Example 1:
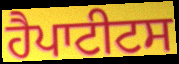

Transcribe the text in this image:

ਹੈਪਾਟੀਟਸ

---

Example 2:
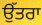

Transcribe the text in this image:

ਉੱਤਰਾ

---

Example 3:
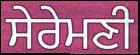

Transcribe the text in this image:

ਸੇਰੇਮਣੀ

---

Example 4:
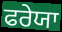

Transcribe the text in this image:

ਫਰੇਯਾ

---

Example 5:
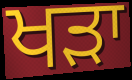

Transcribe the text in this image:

ਖਡ਼ਾ